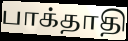
பாக்தாதி